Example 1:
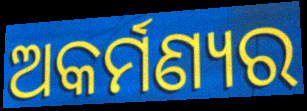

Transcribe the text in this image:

ଅକର୍ମଣ୍ୟର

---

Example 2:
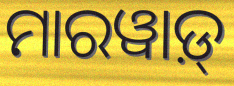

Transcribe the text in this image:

ମାରୱାଡ଼୍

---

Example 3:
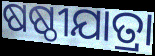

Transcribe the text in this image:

ଷଷ୍ଠୀଯାତ୍ରା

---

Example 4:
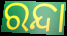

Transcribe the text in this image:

ରନ୍ଦା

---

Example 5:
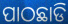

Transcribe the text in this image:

ପାଠଛାଡି